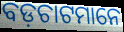
ବଡ଼ଚାଟମାନେ